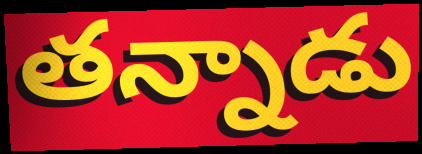
తన్నాడు